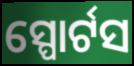
ସ୍ପୋର୍ଟସ